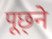
पूछ्ने